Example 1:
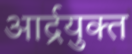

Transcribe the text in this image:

आर्द्रयुक्त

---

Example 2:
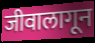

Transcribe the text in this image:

जीवालागून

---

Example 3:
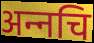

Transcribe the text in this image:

अन्नचि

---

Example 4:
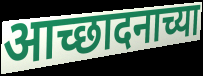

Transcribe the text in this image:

आच्छादनाच्या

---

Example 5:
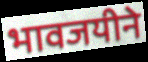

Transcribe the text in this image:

भावजयीने